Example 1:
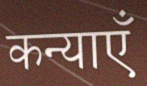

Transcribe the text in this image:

कन्याएँ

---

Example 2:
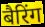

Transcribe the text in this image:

बैरिंग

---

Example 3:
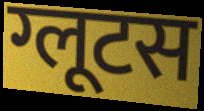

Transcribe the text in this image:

ग्लूटस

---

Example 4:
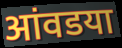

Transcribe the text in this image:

आंवडया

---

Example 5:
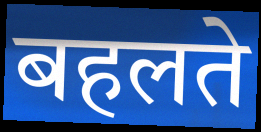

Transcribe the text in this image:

बहलते